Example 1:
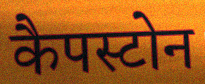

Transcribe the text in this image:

कैपस्टोन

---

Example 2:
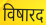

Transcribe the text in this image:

विषारद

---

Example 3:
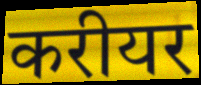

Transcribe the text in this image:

करीयर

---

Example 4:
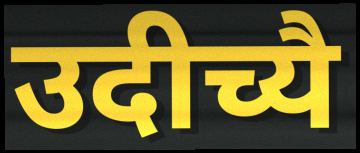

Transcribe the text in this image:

उदीच्यै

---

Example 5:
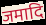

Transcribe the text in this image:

जमादि